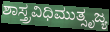
ಶಾಸ್ತ್ರವಿಧಿಮುತ್ಸೃಜ್ಯ